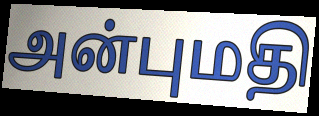
அன்புமதி